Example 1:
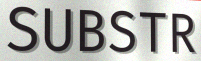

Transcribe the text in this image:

SUBSTR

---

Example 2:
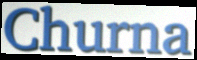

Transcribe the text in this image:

Churna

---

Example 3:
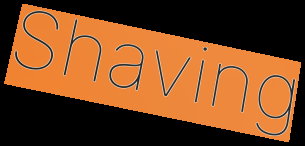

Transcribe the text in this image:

Shaving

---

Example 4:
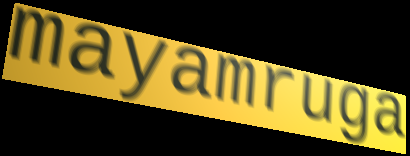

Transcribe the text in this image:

mayamruga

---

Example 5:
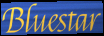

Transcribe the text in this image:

Bluestar